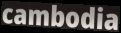
cambodia